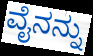
ವೈನನ್ನು